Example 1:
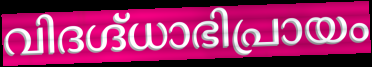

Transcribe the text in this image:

വിദഗ്ദ്ധാഭിപ്രായം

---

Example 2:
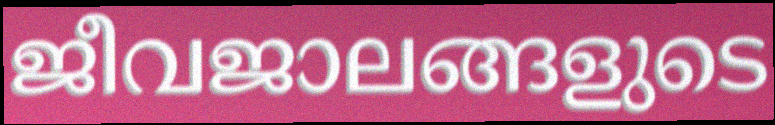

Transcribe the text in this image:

ജീവജാലങ്ങളുടെ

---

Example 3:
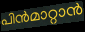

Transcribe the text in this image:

പിൻമാറ്റാൻ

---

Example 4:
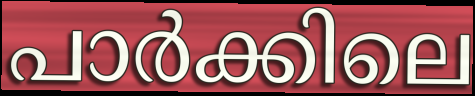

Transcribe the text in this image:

പാർക്കിലെ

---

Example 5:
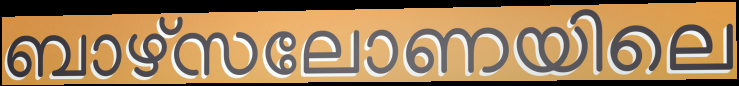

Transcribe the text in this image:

ബാഴ്സലോണയിലെ